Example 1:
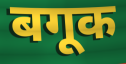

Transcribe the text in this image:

बगूक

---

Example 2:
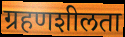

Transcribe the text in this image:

ग्रहणशीलता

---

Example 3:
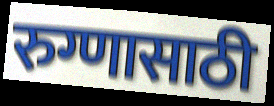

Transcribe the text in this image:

रुग्णासाठी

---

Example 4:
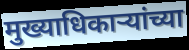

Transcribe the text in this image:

मुख्याधिकाऱ्यांच्या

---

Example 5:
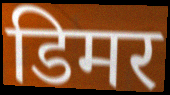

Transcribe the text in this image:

डिमर